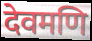
देवमणि